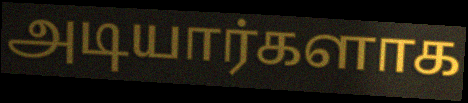
அடியார்களாக